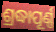
ଶ୍ରଦ୍ଧାପୂର୍ଣ୍ଣ